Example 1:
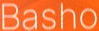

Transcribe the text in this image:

Basho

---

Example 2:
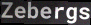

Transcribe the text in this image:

Zebergs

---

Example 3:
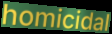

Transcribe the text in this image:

homicidal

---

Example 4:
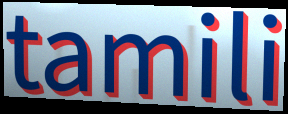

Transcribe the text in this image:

tamili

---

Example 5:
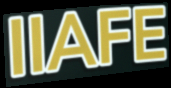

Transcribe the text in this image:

IIAFE